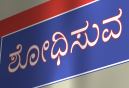
ಶೋಧಿಸುವ